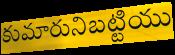
కుమారునిబట్టియు